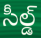
సీల్డ్